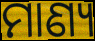
ମାଣ୍ୟ